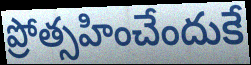
ప్రోత్సహించేందుకే